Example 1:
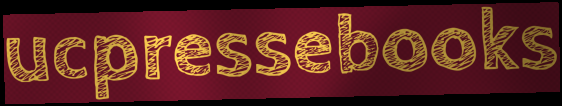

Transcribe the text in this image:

ucpressebooks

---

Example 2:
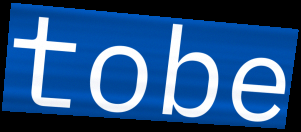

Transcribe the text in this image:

tobe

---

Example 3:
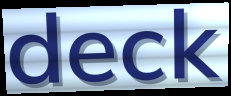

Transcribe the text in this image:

deck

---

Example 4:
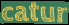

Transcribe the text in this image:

catur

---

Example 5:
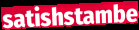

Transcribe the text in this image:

satishstambe